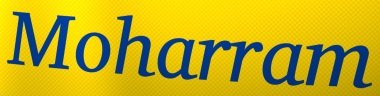
Moharram